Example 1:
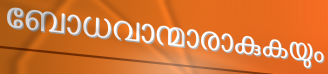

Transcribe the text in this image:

ബോധവാന്മാരാകുകയും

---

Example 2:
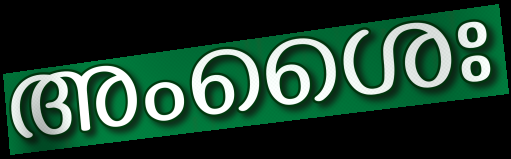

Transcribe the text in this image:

അംശൈഃ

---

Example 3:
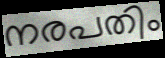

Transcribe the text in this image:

നരപതിം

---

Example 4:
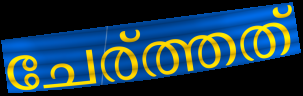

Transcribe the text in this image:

ചേര്ത്തത്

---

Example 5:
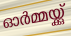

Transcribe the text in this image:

ഓർമ്മയ്ക്കു്